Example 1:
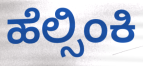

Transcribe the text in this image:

ಹೆಲ್ಸಿಂಕಿ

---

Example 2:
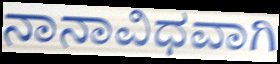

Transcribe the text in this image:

ನಾನಾವಿಧವಾಗಿ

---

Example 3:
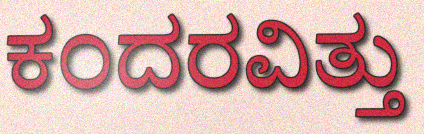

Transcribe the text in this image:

ಕಂದರವಿತ್ತು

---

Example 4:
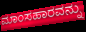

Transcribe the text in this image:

ಮಾಂಸಹಾರವನ್ನು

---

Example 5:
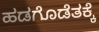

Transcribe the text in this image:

ಹಡಗೊಡೆತಕ್ಕೆ